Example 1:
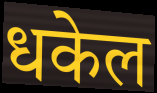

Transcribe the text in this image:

धकेल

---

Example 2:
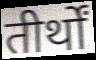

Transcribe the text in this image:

तीर्थों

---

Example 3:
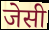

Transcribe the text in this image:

जेसी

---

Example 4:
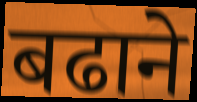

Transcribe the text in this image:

बढाने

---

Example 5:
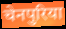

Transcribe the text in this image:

चेनपुरिया